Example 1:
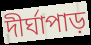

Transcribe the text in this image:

দীর্ঘাপাড়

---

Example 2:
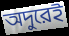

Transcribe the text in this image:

অদুরেই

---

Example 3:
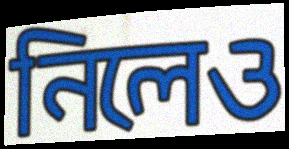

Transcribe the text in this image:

নিলেও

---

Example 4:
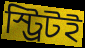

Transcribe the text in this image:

স্ট্রিটই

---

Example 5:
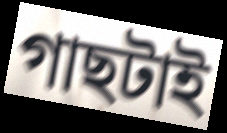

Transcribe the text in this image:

গাছটাই